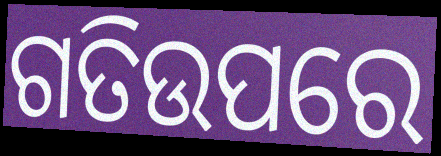
ଗତିଉପରେ